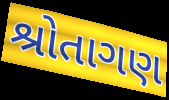
શ્રોતાગણ